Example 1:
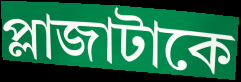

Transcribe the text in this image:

প্লাজাটাকে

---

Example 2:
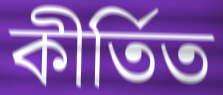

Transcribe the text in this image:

কীর্তিত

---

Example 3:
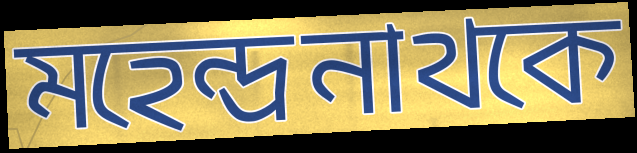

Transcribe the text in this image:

মহেন্দ্রনাথকে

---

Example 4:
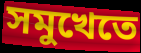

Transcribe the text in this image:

সমুখেতে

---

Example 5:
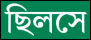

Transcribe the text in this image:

ছিলসে